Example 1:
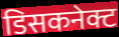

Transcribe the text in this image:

डिसकनेक्ट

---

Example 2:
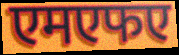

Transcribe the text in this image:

एमएफए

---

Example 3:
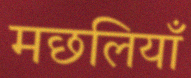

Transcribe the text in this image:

मछलियाँ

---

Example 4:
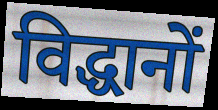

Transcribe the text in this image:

विद्धानों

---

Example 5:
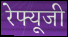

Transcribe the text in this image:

रेफ्यूजी